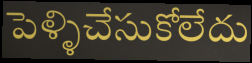
పెళ్ళిచేసుకోలేదు